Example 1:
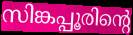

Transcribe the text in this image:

സിങ്കപ്പൂരിന്റെ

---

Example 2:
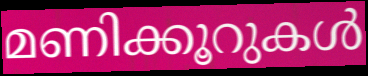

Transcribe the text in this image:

മണിക്കൂറുകൾ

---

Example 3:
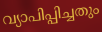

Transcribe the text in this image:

വ്യാപിപ്പിച്ചതും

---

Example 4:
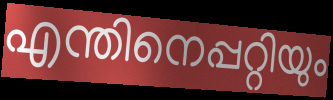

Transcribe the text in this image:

എന്തിനെപ്പറ്റിയും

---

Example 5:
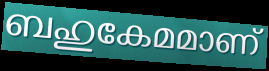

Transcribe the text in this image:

ബഹുകേമമാണ്